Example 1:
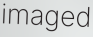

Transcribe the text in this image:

imaged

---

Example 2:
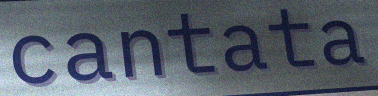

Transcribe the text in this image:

cantata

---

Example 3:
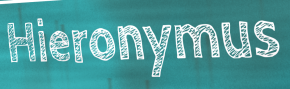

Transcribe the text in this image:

Hieronymus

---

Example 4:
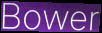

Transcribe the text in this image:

Bower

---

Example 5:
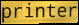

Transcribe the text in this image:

printer